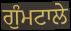
ਗੁੰਮਟਾਲੇ